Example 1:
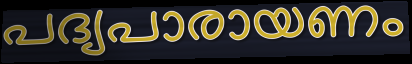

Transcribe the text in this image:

പദ്യപാരായണം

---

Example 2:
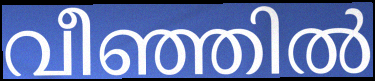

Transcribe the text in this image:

വീഞ്ഞിൽ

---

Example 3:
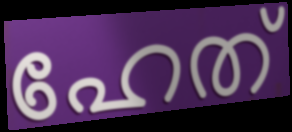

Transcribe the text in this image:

ഹേത്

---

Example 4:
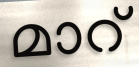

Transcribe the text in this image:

മാറ്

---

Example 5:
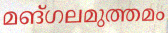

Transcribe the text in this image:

മങ്ഗലമുത്തമം